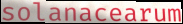
solanacearum